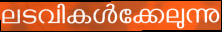
ലടവികൾക്കേലുന്നു